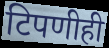
टिपणीही